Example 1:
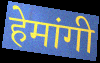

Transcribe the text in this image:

हेमांगी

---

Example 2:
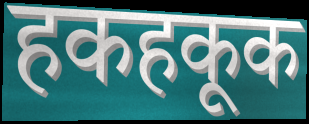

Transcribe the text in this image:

हकहकूक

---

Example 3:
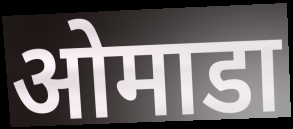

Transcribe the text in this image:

ओमाडा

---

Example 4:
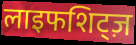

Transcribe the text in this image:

लाइफशिट्ज़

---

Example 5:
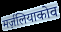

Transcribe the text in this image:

मर्ज़लियाकोव